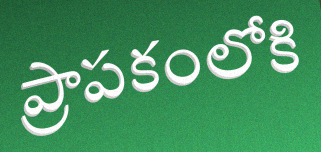
ప్రాపకంలోకి